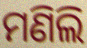
ମଣିଲି